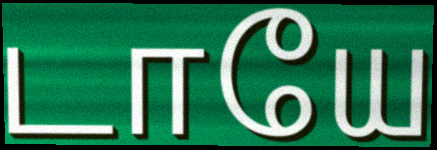
டாயே